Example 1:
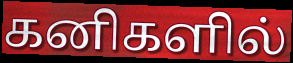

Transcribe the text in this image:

கனிகளில்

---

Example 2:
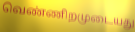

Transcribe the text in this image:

வெண்ணிறமுடையது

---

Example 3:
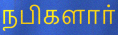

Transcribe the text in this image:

நபிகளார்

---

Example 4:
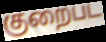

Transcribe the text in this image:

குறைபட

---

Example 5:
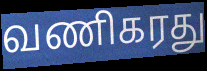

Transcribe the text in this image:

வணிகரது